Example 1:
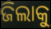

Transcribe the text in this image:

ଜିଲାକୁ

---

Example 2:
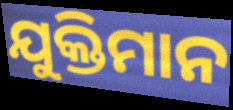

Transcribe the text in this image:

ଯୁକ୍ତିମାନ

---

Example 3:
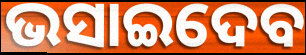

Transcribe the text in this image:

ଭସାଇଦେବ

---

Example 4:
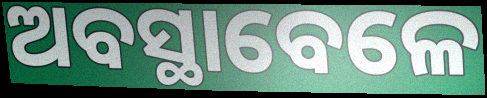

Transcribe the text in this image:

ଅବସ୍ଥାବେଳେ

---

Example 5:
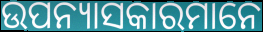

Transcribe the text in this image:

ଉପନ୍ୟାସକାରମାନେ